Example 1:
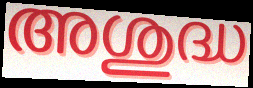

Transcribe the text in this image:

അശുദ്ധ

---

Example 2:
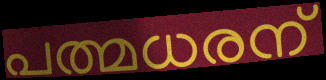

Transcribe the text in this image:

പത്മധരന്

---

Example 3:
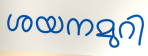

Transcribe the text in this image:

ശയനമുറി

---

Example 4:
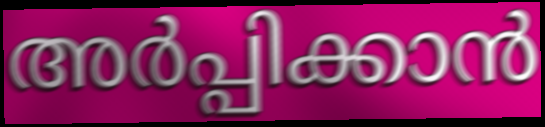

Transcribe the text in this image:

അർപ്പിക്കാൻ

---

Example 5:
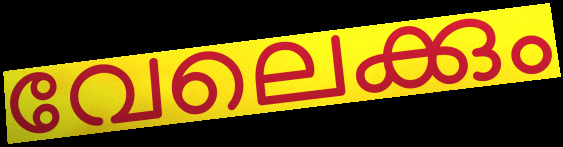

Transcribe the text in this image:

വേലെക്കും